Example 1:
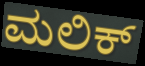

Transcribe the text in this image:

ಮಲಿಕ್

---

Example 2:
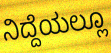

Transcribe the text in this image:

ನಿದ್ದೆಯಲ್ಲೂ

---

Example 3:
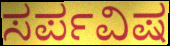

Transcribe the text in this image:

ಸರ್ಪವಿಷ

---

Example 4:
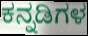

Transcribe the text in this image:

ಕನ್ನಡಿಗಳ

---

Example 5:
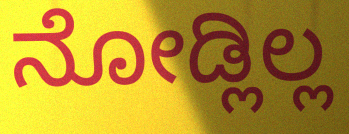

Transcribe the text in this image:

ನೋಡ್ಲಿಲ್ಲ